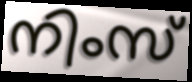
നിംസ്